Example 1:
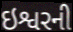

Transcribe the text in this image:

ઇશ્વરની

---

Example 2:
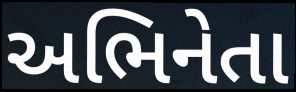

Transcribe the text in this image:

અભિનેતા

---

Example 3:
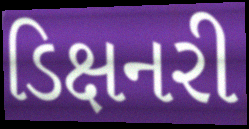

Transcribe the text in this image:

ડિક્ષનરી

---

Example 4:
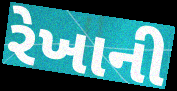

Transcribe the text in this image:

રેખાની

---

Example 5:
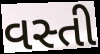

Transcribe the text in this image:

વસ્તી